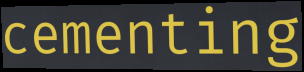
cementing